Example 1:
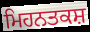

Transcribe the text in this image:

ਮਿਹਨਤਕਸ਼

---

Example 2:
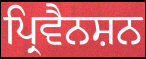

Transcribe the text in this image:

ਪ੍ਰਿਵੈਨਸ਼ਨ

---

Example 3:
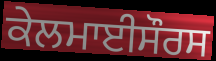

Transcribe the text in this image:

ਕੇਲਮਾਈਸੌਰਸ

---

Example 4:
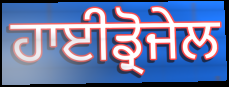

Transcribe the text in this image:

ਹਾਈਡ੍ਰੋਜੇਲ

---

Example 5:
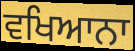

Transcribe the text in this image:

ਵਖਿਆਨਾ